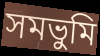
সমভুমি